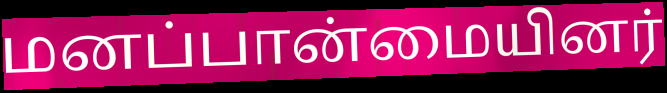
மனப்பான்மையினர்